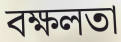
বক্ষলতা